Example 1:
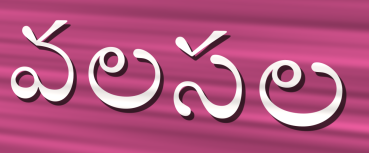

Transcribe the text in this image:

వలసల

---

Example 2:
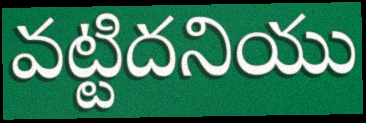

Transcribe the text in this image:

వట్టిదనియు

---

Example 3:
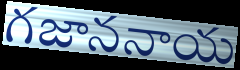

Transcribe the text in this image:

గజాననాయ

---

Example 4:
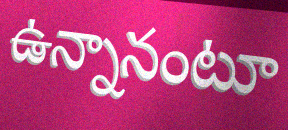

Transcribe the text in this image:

ఉన్నానంటూ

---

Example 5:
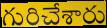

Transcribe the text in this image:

గురిచేశారు